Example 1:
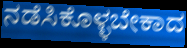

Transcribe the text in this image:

ನಡೆಸಿಕೊಳ್ಳಬೇಕಾದ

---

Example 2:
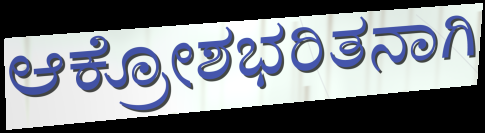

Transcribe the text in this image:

ಆಕ್ರೋಶಭರಿತನಾಗಿ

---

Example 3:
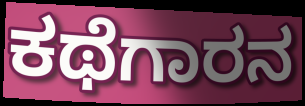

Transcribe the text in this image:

ಕಥೆಗಾರನ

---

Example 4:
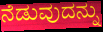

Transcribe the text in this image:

ನೆಡುವುದನ್ನು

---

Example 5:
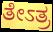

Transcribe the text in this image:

ತೇಽತ್ರ